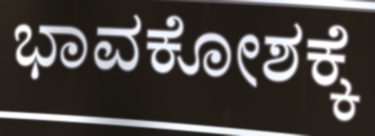
ಭಾವಕೋಶಕ್ಕೆ